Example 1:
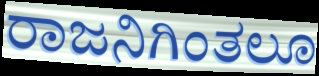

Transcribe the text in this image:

ರಾಜನಿಗಿಂತಲೂ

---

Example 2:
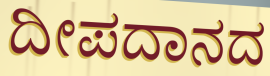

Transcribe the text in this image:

ದೀಪದಾನದ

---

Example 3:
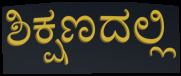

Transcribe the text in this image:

ಶಿಕ್ಷಣದಲ್ಲಿ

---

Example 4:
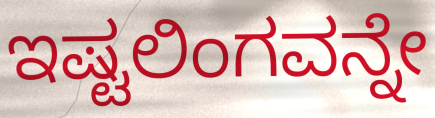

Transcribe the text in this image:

ಇಷ್ಟಲಿಂಗವನ್ನೇ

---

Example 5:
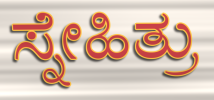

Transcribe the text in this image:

ಸ್ನೇಹಿತ್ರು